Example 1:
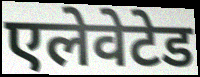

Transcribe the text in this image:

एलेवेटेड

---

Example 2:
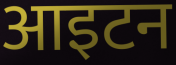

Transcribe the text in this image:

आइटन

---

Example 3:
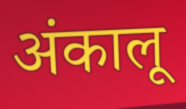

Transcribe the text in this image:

अंकालू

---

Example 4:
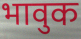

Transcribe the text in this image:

भावुक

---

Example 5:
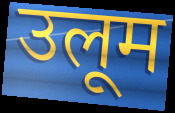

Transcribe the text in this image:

उलूम